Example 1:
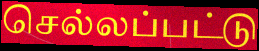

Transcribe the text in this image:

செல்லப்பட்டு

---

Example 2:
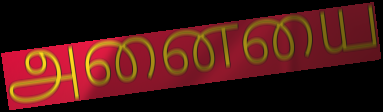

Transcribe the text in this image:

அனையை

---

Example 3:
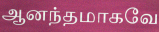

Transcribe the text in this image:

ஆனந்தமாகவே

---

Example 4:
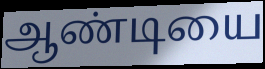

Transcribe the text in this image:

ஆண்டியை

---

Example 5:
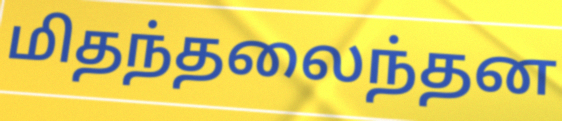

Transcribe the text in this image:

மிதந்தலைந்தன